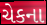
ચેકના